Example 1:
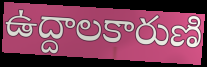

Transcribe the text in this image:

ఉద్దాలకారుణి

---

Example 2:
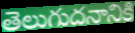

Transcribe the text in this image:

తెలుగుదనానికి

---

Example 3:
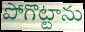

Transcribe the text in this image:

పోగొట్టాను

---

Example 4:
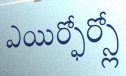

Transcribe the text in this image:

ఎయిర్ఫోర్స్లో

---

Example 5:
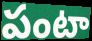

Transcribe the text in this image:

పంటా